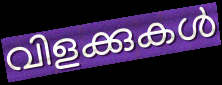
വിളക്കുകൾ